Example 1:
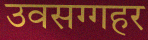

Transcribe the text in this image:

उवसग्गहर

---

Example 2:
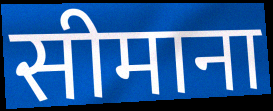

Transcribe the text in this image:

सीमाना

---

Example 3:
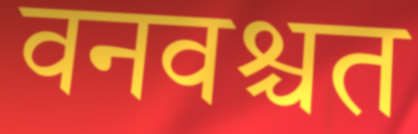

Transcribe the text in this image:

वनवश्चत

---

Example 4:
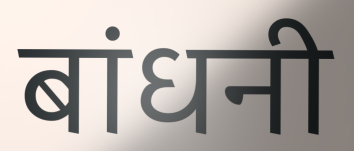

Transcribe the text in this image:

बांधनी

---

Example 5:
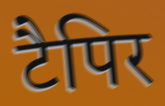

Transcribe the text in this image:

टैपिर